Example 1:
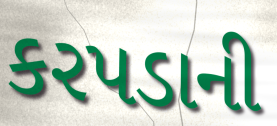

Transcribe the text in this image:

કરપડાની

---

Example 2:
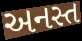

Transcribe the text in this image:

અનસ્ત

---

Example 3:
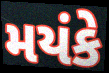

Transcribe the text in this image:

મયંકે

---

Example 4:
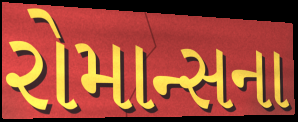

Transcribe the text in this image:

રોમાન્સના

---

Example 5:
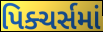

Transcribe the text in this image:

પિક્ચર્સમાં